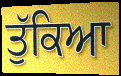
ਤੁੱਕਿਆ